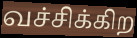
வச்சிக்கிற